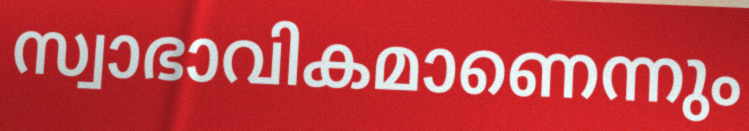
സ്വാഭാവികമാണെന്നും